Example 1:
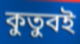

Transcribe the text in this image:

কুতুবই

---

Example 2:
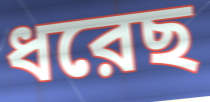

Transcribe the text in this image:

ধরেছ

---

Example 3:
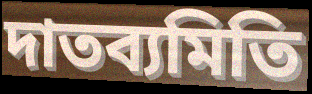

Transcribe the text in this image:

দাতব্যমিতি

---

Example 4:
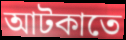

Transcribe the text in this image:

আটকাতে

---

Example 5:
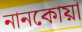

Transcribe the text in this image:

নানকোয়া